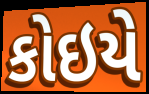
કોઇયે